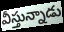
వీస్తున్నాడు